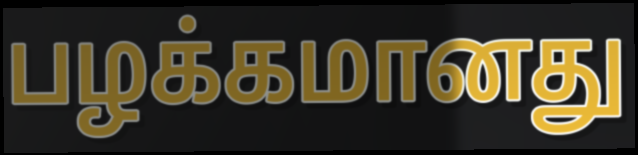
பழக்கமானது